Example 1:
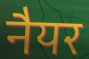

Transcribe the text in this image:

नैयर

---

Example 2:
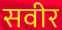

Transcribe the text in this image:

सवीर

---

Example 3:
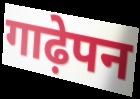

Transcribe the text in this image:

गाढ़ेपन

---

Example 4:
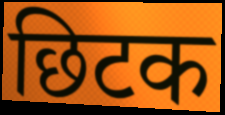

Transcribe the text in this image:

छिटक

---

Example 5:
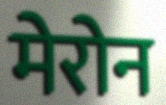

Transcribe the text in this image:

मेरोन